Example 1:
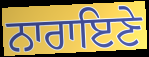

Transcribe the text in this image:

ਨਾਰਾਇਣੇ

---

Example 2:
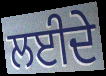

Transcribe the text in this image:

ਲਈਦੇ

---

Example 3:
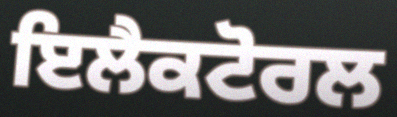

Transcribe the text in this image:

ਇਲੈਕਟੋਰਲ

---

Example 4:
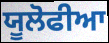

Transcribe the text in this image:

ਯੂਲੋਫੀਆ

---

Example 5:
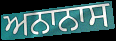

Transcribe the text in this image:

ਅਨਾਨਾਸ